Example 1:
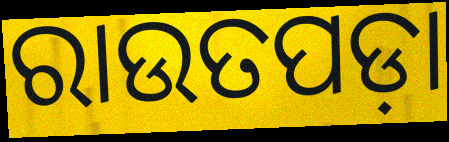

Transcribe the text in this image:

ରାଉତପଡ଼ା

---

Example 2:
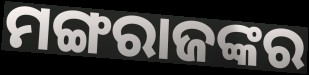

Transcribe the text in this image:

ମଙ୍ଗରାଜଙ୍କର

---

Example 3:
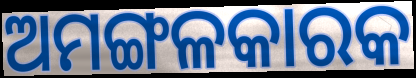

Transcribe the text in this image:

ଅମଙ୍ଗଳକାରକ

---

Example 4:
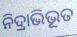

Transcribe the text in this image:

ନିଦ୍ରାଭିଭୂତ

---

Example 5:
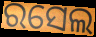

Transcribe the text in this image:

ରସେଲ